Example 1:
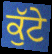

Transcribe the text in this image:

ਕੁੱਟੇ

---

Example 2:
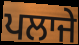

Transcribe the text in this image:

ਪਲਾਜੇ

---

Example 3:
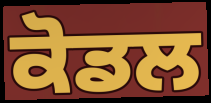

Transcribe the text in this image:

ਕੋਡਲ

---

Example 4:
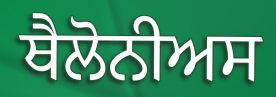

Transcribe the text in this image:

ਥੈਲੋਨੀਅਸ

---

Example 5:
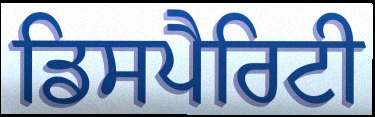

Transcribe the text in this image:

ਡਿਸਪੈਰਿਟੀ